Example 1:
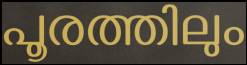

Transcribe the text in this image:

പൂരത്തിലും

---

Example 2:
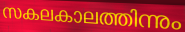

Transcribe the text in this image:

സകലകാലത്തിന്നും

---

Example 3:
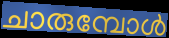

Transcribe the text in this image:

ചാരുമ്പോൾ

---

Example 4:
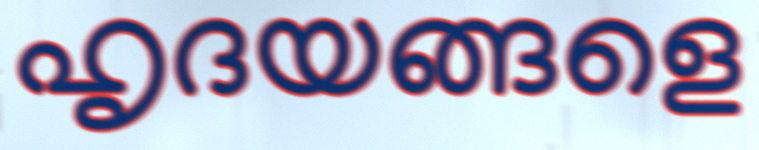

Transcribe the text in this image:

ഹൃദയങ്ങളെ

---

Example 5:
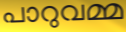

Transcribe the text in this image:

പാറുവമ്മ